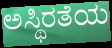
ಅಸ್ಥಿರತೆಯ